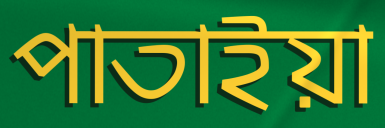
পাতাইয়া